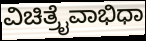
ವಿಚಿತ್ರೈವಾಭಿಧಾ